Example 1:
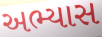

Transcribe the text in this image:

અભ્યાસ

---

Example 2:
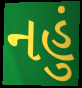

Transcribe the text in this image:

નહું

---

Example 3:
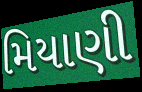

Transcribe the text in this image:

મિયાણી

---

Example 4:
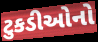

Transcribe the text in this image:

ટુકડીઓનો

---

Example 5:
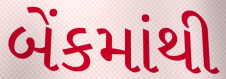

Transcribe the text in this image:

બેંકમાંથી